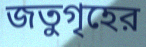
জতুগৃহের